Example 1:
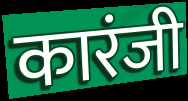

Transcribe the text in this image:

कारंजी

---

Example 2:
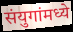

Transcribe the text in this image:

संयुगांमध्ये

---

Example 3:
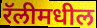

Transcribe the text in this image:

रॅलीमधील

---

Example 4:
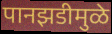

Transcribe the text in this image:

पानझडीमुळे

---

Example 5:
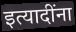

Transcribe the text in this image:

इत्यादींना